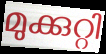
മുക്കുറ്റി